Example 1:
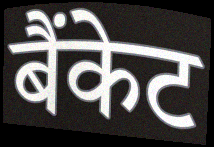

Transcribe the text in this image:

बैंकेट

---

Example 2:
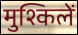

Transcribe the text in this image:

मुश्किलें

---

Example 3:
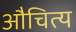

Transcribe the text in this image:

औचित्‍य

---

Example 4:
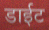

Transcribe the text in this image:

डाईट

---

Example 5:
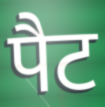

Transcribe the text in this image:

पैट